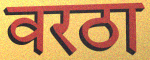
वरठा